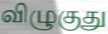
விழுகுது